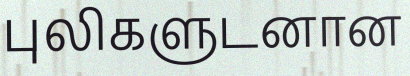
புலிகளுடனான